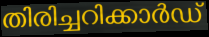
തിരിച്ചറിക്കാർഡ്